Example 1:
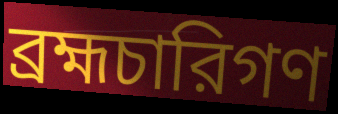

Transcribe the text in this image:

ব্রহ্মচারিগণ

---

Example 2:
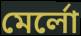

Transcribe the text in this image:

মের্লো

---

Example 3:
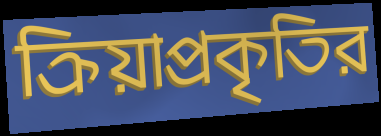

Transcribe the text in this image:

ক্রিয়াপ্রকৃতির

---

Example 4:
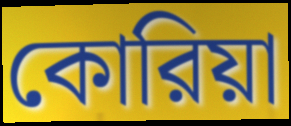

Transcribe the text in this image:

কোরিয়া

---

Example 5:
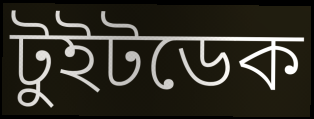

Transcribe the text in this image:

টুইটডেক